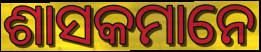
ଶାସକମାନେ